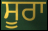
ਸੂਰਾ